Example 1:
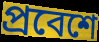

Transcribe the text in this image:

প্রবেশে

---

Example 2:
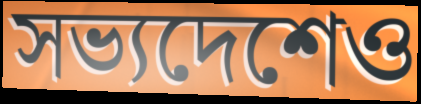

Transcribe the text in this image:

সভ্যদেশেও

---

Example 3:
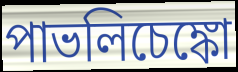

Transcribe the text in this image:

পাভলিচেঙ্কো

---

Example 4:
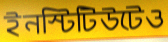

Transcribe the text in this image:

ইনস্টিটিউটেও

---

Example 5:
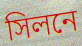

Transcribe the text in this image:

সিলনে